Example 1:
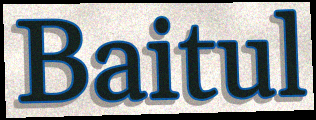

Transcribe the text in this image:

Baitul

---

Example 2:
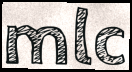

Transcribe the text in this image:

mlc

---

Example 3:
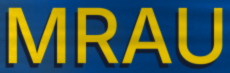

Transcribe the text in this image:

MRAU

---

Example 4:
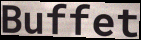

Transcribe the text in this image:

Buffet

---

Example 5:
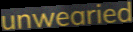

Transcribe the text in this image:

unwearied